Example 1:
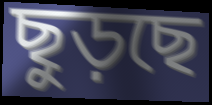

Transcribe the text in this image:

ছুড়ছে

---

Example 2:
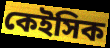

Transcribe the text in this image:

কেইসিক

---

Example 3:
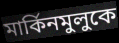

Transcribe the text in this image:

মার্কিনমুলুকে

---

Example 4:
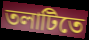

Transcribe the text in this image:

তলাটিতে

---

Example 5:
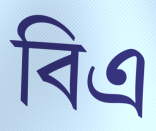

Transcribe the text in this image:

বিএ